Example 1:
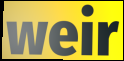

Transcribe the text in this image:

weir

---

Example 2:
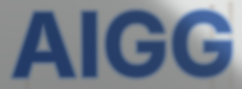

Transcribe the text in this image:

AIGG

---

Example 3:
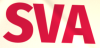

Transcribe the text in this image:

SVA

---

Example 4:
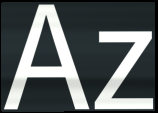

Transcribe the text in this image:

Az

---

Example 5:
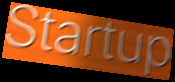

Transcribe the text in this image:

Startup